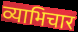
व्याभिचार